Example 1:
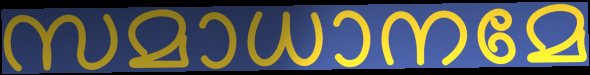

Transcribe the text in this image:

സമാധാനമേ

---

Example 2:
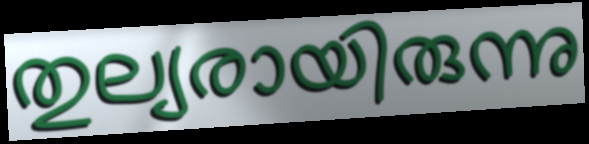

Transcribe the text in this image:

തുല്യരായിരുന്നു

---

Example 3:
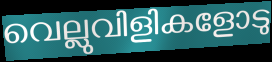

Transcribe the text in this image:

വെല്ലുവിളികളോടു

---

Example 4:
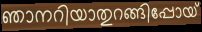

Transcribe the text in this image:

ഞാനറിയാതുറങ്ങിപ്പോയ്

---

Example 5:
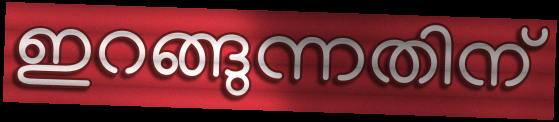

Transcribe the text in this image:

ഇറങ്ങുന്നതിന്